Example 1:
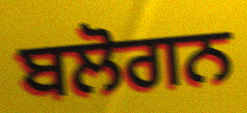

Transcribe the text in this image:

ਬਲੋਗਨ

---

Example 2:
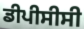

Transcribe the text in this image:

ਡੀਪੀਸੀਸੀ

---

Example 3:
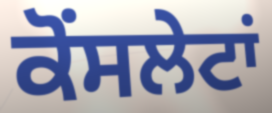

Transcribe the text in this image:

ਕੋਂਸਲੇਟਾਂ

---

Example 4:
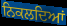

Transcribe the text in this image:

ਨਿਕਲਦਿਆਂ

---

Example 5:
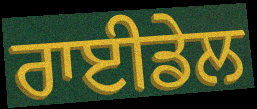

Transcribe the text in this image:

ਰਾਈਡੇਲ